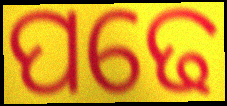
ପଢେ